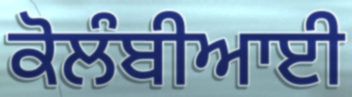
ਕੋਲੰਬੀਆਈ